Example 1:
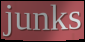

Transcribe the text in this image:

junks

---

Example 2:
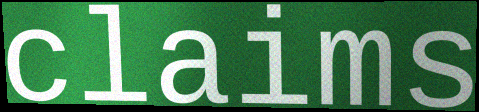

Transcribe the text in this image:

claims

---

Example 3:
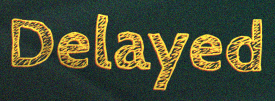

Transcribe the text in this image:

Delayed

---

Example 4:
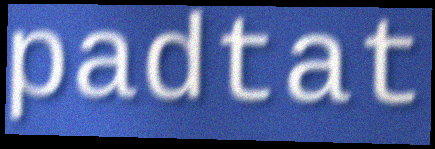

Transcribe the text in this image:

padtat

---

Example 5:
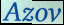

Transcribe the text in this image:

Azov